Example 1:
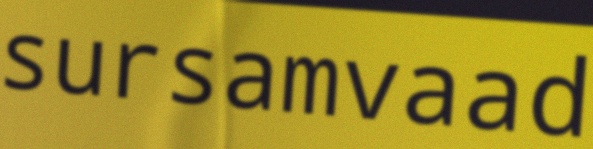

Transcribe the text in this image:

sursamvaad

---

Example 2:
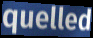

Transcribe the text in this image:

quelled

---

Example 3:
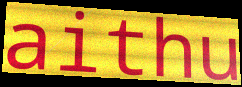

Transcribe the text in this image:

aithu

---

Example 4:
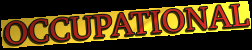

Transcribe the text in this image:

OCCUPATIONAL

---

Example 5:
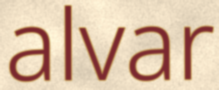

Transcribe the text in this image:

alvar